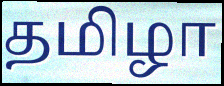
தமிழா